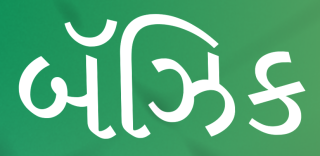
બૅઝિક